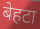
बेहटा